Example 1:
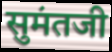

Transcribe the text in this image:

सुमंतजी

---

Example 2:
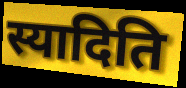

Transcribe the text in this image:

स्यादिति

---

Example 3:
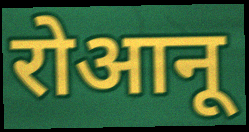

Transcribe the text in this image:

रोआनू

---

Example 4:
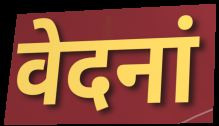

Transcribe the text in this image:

वेदनां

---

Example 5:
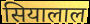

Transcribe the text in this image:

सियालाल